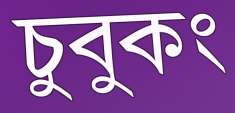
চুবুকং